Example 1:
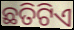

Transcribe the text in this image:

ଛତିଟିଏ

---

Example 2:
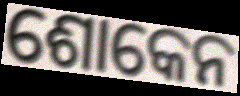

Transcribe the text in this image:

ଶୋକେନ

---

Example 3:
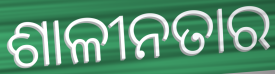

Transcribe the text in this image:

ଶାଳୀନତାର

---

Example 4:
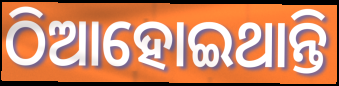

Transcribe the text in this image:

ଠିଆହୋଇଥାନ୍ତି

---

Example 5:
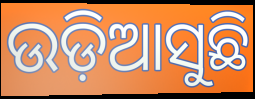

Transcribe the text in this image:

ଉଡ଼ିଆସୁଛି